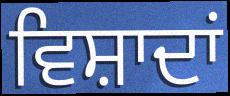
ਵਿਸ਼ਾਦਾਂ